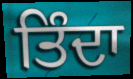
ਤਿੰਦਾ